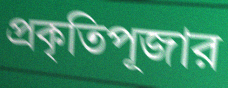
প্রকৃতিপূজার